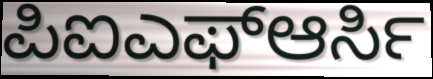
ಪಿಐಎಫ್ಆರ್ಸಿ